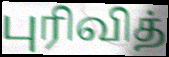
புரிவித்